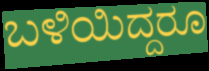
ಬಳಿಯಿದ್ದರೂ